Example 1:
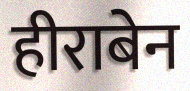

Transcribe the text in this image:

हीराबेन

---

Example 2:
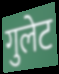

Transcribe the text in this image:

गुलेट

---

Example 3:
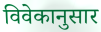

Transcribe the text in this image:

विवेकानुसार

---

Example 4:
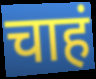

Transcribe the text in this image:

चाहं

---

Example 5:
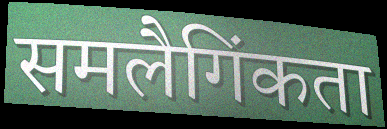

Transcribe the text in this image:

समलैगिंकता